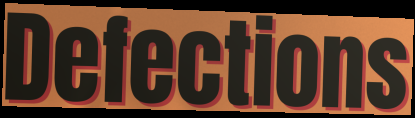
Defections